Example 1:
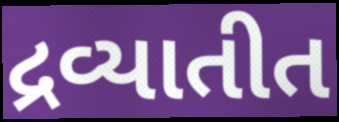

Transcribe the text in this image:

દ્રવ્યાતીત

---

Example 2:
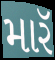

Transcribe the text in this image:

મારૅ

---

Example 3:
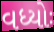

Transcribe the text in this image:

વધ્યોઃ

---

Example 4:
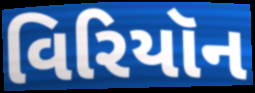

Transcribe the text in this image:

વિરિયૉન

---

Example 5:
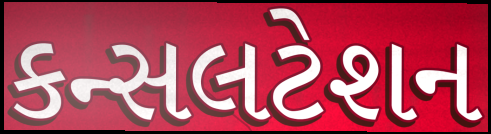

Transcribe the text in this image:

કન્સલટેશન